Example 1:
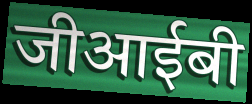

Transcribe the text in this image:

जीआईबी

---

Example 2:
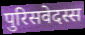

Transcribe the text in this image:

पुरिसवेदस्स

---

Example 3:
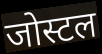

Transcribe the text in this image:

जोस्टल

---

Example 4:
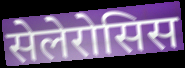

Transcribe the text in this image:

सेलेरोसिस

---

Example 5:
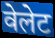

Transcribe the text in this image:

वेलेट